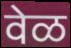
वेळ